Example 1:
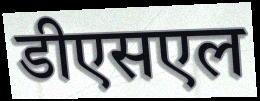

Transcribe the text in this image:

डीएसएल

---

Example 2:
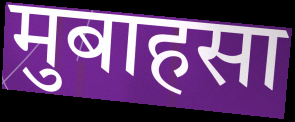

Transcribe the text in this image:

मुबाहसा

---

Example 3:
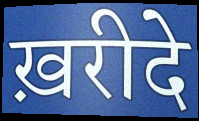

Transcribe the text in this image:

ख़रीदे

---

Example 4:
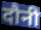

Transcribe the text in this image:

दौनी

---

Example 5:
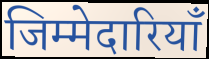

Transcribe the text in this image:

जिम्मेदारियॉं